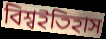
বিশ্বইতিহাস